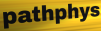
pathphys